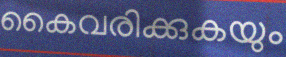
കൈവരിക്കുകയും